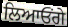
ਲਿਆਓਂਗੇ